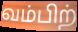
வம்பிற்